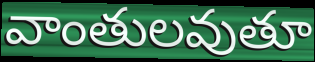
వాంతులవుతూ